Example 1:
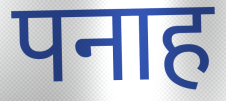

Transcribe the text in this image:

पनाह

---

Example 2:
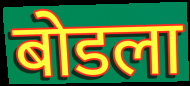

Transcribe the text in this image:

बोडला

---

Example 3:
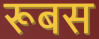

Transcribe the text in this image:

रूबस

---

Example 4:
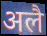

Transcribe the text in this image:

अलै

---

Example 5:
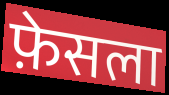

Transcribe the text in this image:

फ़ेसला